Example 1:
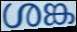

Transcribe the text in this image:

ശങ്ക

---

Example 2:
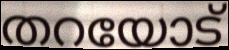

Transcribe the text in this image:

തറയോട്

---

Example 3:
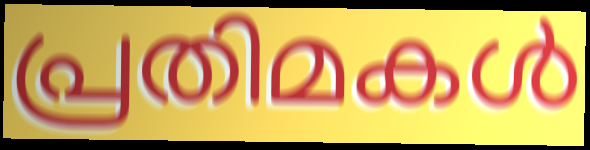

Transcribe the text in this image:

പ്രതിമകൾ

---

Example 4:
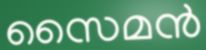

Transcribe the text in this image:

സൈമൻ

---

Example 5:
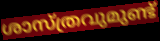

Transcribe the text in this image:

ശാസ്ത്രവുമുണ്ട്